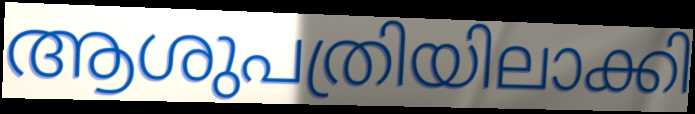
ആശുപത്രിയിലാക്കി